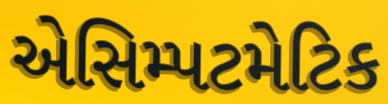
એસિમ્પટમેટિક